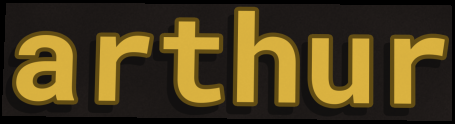
arthur